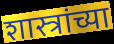
शास्त्रांच्या